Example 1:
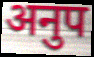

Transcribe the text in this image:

अनुप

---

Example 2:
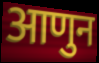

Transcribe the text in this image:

आणुन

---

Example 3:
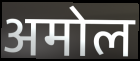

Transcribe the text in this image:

अमोल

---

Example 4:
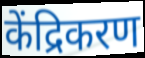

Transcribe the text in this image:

केंद्रिकरण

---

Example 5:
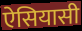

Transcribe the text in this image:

ऐसियासी